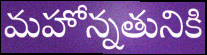
మహోన్నతునికి